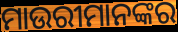
ମାଉରୀମାନଙ୍କର